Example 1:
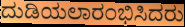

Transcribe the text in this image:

ದುಡಿಯಲಾರಂಭಿಸಿದರು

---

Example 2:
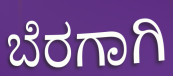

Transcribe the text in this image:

ಬೆರಗಾಗಿ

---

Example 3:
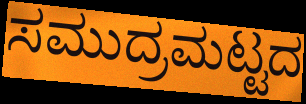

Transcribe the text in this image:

ಸಮುದ್ರಮಟ್ಟದ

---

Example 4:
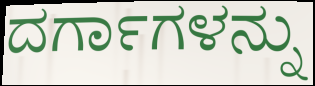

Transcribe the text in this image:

ದರ್ಗಾಗಳನ್ನು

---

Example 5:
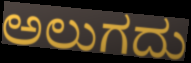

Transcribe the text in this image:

ಅಲುಗದು